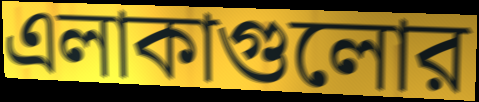
এলাকাগুলোর